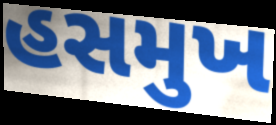
હસમુખ